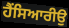
ਹੈਂਸਿਆਰੀਉ